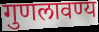
गुणलावण्य